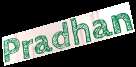
Pradhan